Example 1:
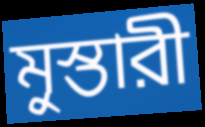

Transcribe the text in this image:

মুস্তারী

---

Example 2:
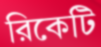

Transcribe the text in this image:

রিকেটি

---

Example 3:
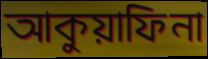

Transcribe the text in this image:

আকুয়াফিনা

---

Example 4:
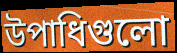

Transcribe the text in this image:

উপাধিগুলো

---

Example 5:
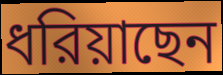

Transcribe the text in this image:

ধরিয়াছেন